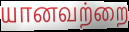
யானவற்றை